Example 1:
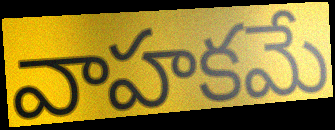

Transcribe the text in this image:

వాహకమే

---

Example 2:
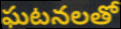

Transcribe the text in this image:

ఘటనలతో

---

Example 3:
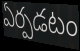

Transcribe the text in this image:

ఏర్పడటం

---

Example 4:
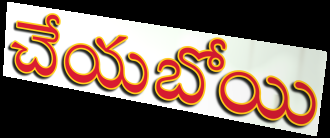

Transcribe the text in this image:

చేయబోయి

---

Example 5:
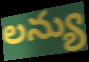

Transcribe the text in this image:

లన్యు